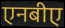
एनबीए